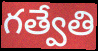
గత్వేతి